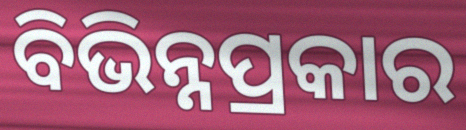
ବିଭିନ୍ନପ୍ରକାର